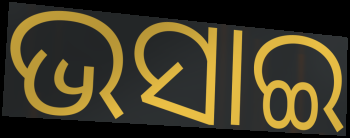
ଭସାଇ